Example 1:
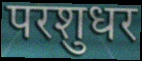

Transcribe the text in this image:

परशुधर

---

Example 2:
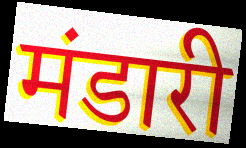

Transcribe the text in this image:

मंडारी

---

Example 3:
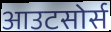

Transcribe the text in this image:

आउटसोर्स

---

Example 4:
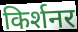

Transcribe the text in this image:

किर्शनर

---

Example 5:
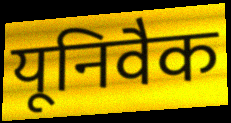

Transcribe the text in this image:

यूनिवैक